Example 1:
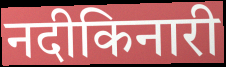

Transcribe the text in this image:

नदीकिनारी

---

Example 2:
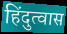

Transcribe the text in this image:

हिंदुत्वास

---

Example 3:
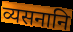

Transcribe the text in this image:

व्यसनानि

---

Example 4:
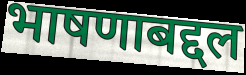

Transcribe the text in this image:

भाषणाबद्दल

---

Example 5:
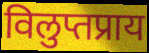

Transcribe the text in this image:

विलुप्तप्राय